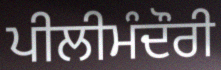
ਪੀਲੀਮੰਦੌਰੀ